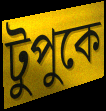
টুপুকে